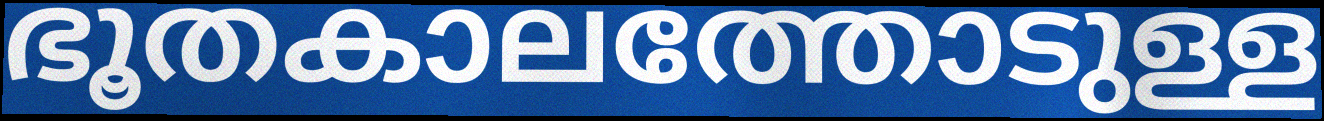
ഭൂതകാലത്തോടുള്ള